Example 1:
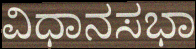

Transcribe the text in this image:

ವಿಧಾನಸಭಾ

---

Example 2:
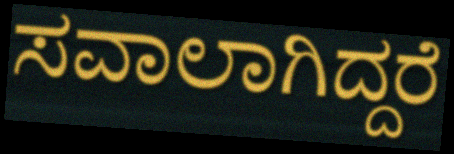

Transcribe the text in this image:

ಸವಾಲಾಗಿದ್ದರೆ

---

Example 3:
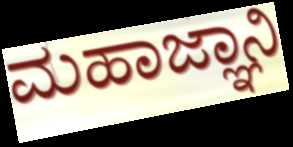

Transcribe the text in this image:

ಮಹಾಜ್ಞಾನಿ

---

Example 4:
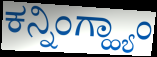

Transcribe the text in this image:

ಕನ್ನಿಂಗ್ಹ್ಯಾಂ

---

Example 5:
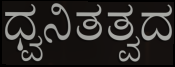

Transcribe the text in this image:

ಧ್ವನಿತತ್ವದ